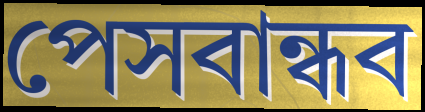
পেসবান্ধব